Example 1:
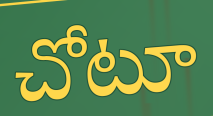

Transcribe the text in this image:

చోటూ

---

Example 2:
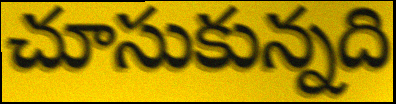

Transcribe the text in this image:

చూసుకున్నది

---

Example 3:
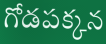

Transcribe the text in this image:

గోడపక్కన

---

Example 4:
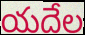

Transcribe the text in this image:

యదేల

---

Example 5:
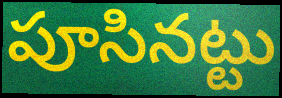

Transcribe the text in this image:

పూసినట్టు